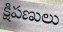
క్షిపణులు